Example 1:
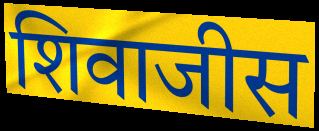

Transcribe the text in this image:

शिवाजीस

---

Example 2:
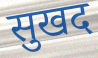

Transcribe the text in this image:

सुखद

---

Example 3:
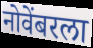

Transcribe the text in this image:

नोवेंबरला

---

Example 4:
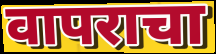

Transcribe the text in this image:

वापराचा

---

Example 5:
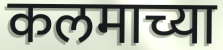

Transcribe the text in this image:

कलमाच्या